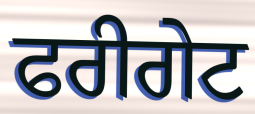
ਫਰੀਗੇਟ